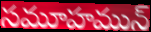
సమూహమున్